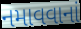
નમાવવાનાં